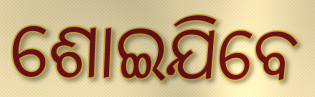
ଶୋଇଯିବେ